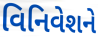
વિનિવેશને